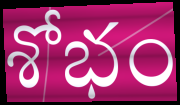
శోభం